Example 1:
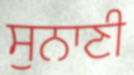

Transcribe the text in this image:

ਸੁਨਾਣੀ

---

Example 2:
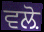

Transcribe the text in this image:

ਵਲ਼ੋ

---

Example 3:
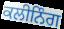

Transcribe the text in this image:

ਕਲੀਨਿੰਗ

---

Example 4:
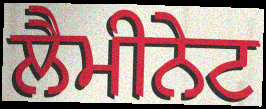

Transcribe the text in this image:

ਲੈਮੀਨੇਟ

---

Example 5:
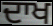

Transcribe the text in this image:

ਦਾਖ